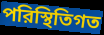
পরিস্থিতিগত